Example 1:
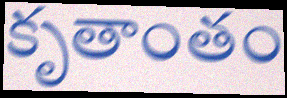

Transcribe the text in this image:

కృతాంతం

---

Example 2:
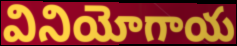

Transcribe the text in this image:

వినియోగాయ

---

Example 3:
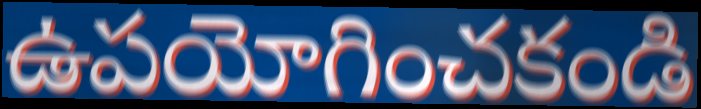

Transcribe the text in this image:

ఉపయోగించకండి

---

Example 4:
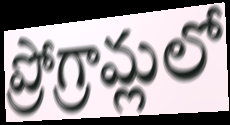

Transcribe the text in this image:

ప్రోగ్రామ్లలో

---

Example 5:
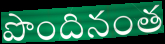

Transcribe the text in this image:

పొందినంత